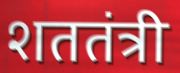
शततंत्री